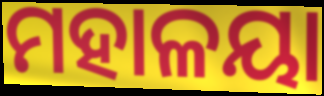
ମହାଳୟା